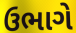
ઉભાગે